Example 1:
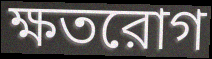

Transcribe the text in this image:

ক্ষতরোগ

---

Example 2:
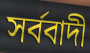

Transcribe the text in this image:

সর্ববাদী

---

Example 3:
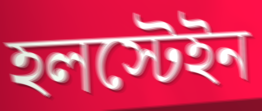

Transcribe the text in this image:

হলস্টেইন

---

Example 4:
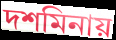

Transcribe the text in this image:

দশমিনায়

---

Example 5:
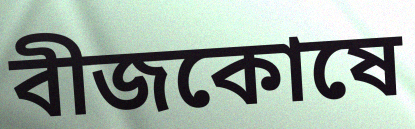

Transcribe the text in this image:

বীজকোষে